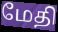
மேதி